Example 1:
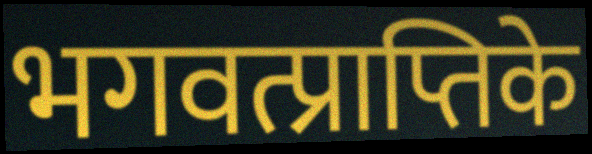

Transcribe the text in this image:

भगवत्प्राप्तिके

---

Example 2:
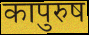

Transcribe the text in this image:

कापुरुष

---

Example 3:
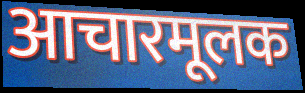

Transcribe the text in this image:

आचारमूलक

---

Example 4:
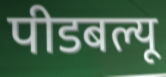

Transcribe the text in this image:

पीडबल्यू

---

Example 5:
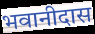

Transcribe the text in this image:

भवानीदास